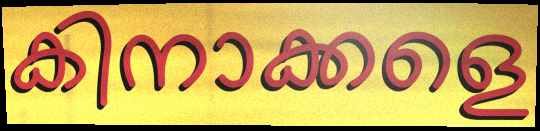
കിനാക്കളെ